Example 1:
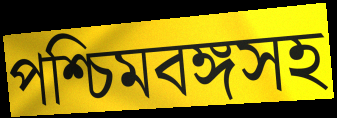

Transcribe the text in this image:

পশ্চিমবঙ্গসহ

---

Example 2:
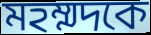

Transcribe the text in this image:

মহম্মদকে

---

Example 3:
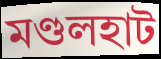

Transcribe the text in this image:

মণ্ডলহাট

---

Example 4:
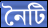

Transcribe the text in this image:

নৈটি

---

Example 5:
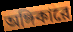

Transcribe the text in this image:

অঙ্গিকারে